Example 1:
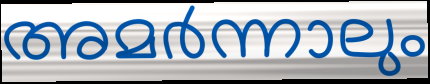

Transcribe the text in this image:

അമർന്നാലും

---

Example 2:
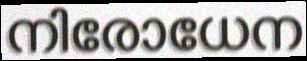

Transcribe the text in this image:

നിരോധേന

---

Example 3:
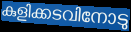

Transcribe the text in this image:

കുളിക്കടവിനോടു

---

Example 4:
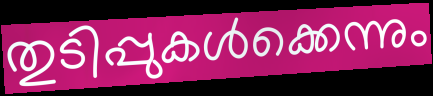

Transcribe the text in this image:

തുടിപ്പുകൾക്കെന്നും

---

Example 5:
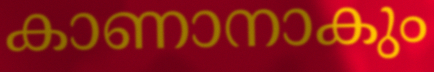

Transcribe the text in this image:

കാണാനാകും